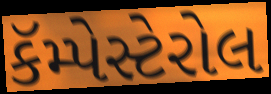
કૅમ્પેસ્ટેરોલ